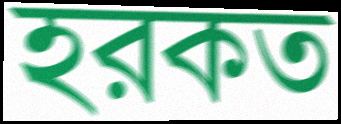
হরকত